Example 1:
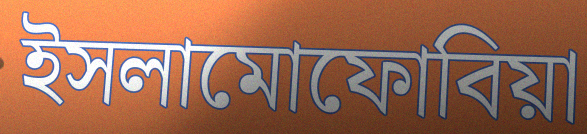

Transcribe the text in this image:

ইসলামোফোবিয়া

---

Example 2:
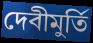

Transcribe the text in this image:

দেবীমুর্তি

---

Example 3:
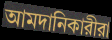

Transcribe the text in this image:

আমদানিকারীরা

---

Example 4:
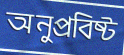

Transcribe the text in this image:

অনুপ্রবিষ্ট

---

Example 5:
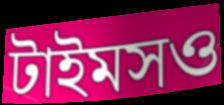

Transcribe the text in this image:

টাইমসও